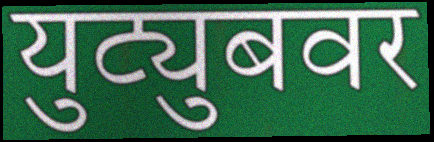
युट्युबवर